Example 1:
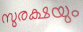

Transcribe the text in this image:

സുരക്ഷയും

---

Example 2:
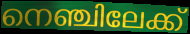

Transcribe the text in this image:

നെഞ്ചിലേക്ക്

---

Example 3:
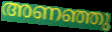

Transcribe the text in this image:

അണഞ്ഞു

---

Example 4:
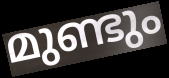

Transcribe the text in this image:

മുണ്ടും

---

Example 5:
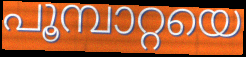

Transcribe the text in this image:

പൂമ്പാറ്റയെ